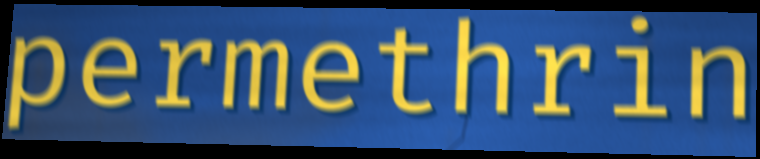
permethrin